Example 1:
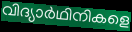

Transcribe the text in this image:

വിദ്യാർഥിനികളെ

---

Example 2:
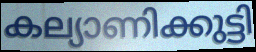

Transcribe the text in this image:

കല്യാണിക്കുട്ടി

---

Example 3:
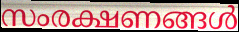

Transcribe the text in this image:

സംരക്ഷണങ്ങൾ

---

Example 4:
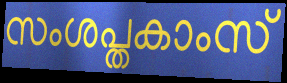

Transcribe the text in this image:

സംശപ്തകാംസ്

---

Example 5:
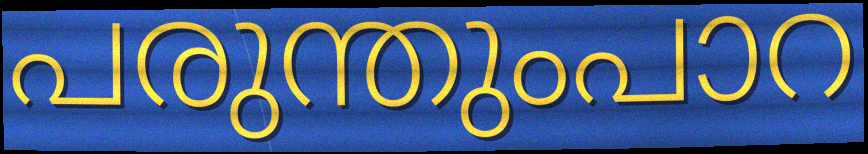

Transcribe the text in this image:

പരുന്തുംപാറ